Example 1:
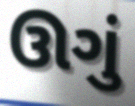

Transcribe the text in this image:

ઊગું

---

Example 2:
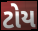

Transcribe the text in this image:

ટોય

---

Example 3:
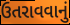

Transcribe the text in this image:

ઉતરાવવાનું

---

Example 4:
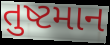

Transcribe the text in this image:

તુષ્ટમાન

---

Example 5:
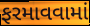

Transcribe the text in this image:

ફરમાવવામાં